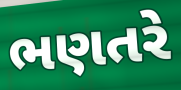
ભણતરે